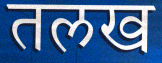
तलख